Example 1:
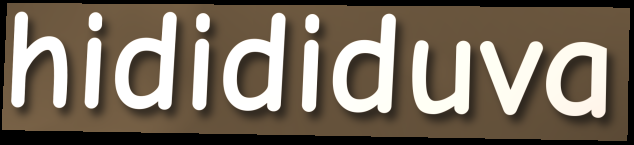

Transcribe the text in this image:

hidididuva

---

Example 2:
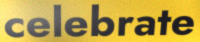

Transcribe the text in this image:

celebrate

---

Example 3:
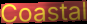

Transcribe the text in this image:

Coastal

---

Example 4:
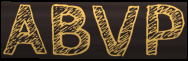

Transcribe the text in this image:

ABVP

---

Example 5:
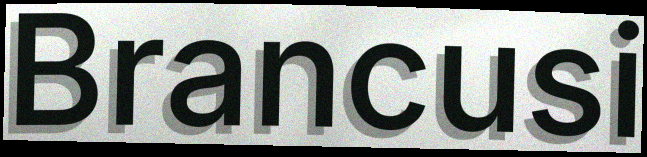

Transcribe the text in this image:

Brancusi